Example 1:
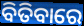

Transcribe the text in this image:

ବିତିବାରେ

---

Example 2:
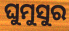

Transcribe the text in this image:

ଘୁମୁସୁର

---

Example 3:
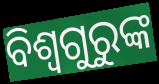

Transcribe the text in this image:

ବିଶ୍ୱଗୁରୁଙ୍କ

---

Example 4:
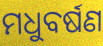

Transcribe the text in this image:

ମଧୁବର୍ଷଣ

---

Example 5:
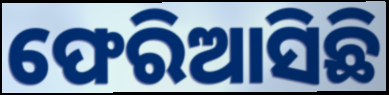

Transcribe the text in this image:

ଫେରିଆସିଛି